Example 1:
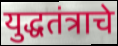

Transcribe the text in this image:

युद्धतंत्राचे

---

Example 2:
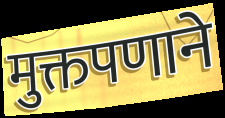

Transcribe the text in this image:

मुक्तपणाने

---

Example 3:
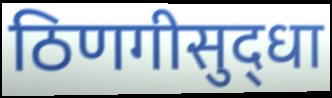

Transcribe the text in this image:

ठिणगीसुद्धा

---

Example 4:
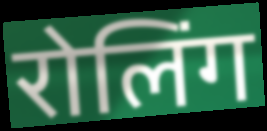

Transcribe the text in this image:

रोलिंग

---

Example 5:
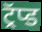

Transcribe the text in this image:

ट्रॅप्ड